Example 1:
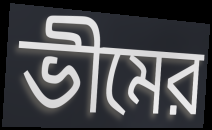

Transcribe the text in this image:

ভীমের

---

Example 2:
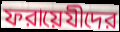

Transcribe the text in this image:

ফরায়েযীদের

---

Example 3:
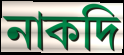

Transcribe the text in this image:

নাকদি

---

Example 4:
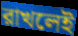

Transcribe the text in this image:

রাখলেই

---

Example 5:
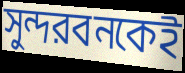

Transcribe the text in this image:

সুন্দরবনকেই